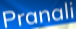
Pranali